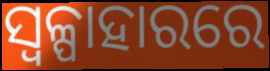
ସ୍ୱଳ୍ପାହାରରେ